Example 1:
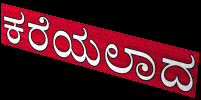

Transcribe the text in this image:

ಕರೆಯಲಾದ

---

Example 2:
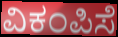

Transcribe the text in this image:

ವಿಕಂಪಿಸೆ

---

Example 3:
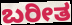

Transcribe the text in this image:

ಬರೀತ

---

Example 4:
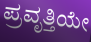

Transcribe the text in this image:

ಪ್ರವೃತ್ತಿಯೇ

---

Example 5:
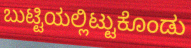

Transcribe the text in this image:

ಬುಟ್ಟಿಯಲ್ಲಿಟ್ಟುಕೊಂಡು